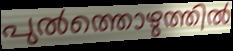
പുൽത്തൊഴുത്തിൽ